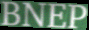
BNEP